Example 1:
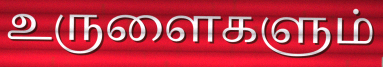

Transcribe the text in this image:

உருளைகளும்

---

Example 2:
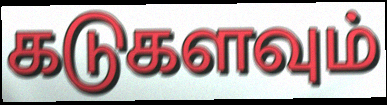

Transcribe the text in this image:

கடுகளவும்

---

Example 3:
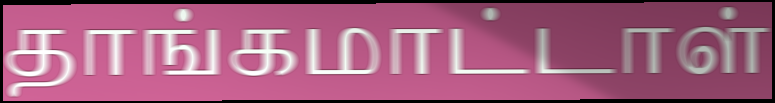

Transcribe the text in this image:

தாங்கமாட்டாள்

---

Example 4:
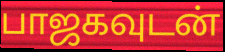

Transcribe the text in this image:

பாஜகவுடன்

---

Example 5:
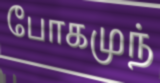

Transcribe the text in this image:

போகமுந்